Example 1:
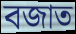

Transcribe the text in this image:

বজাত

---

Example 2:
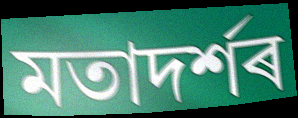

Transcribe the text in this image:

মতাদৰ্শৰ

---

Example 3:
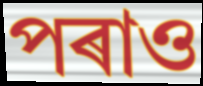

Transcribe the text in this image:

পৰাও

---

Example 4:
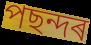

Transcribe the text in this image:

পছন্দৰ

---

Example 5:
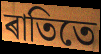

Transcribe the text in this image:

ৰাতিতে